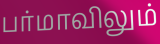
பர்மாவிலும்